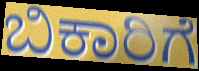
ಬಿಕಾರಿಗೆ